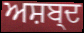
ਅਸ਼ਬ੍ਦ